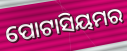
ପୋଟାସିୟମର